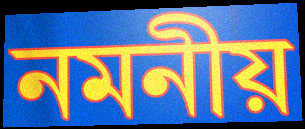
নমনীয়